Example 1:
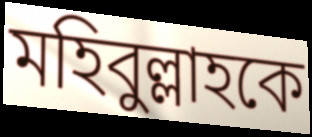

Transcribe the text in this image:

মহিবুল্লাহকে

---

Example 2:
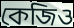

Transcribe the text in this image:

কেজিও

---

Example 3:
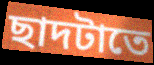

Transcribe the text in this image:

ছাদটাতে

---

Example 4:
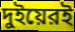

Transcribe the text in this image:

দুইয়েরই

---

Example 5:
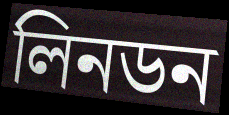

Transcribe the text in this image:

লিনডন